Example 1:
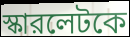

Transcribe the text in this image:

স্কারলেটকে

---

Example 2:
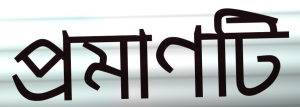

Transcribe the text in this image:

প্রমাণটি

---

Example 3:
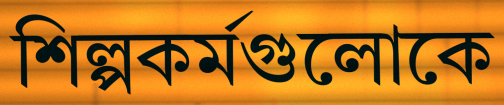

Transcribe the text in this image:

শিল্পকর্মগুলোকে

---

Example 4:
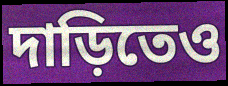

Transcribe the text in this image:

দাড়িতেও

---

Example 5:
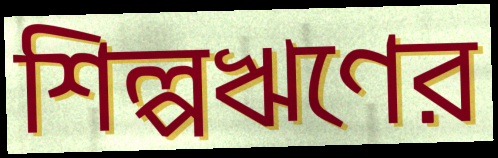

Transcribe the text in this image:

শিল্পঋণের